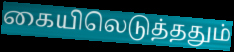
கையிலெடுத்ததும்